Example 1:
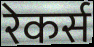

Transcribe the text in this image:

रेकर्स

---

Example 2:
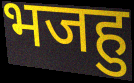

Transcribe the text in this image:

भजहु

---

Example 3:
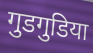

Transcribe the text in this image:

गुडगुडिया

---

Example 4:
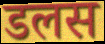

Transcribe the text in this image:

डलस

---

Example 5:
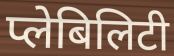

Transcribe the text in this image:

प्लेबिलिटी